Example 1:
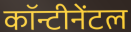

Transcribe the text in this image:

कॉन्टीनेंटल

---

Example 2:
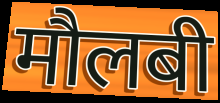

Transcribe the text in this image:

मौलबी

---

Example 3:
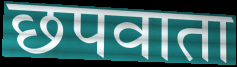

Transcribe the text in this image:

छपवाता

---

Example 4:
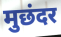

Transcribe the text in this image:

मुछंदर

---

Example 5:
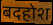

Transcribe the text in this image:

बदहोश